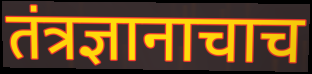
तंत्रज्ञानाचाच